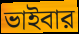
ভাইবার